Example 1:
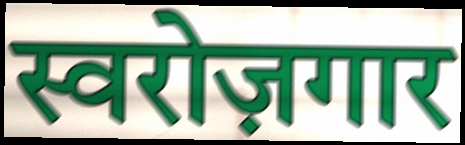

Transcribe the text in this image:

स्वरोज़गार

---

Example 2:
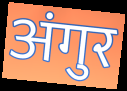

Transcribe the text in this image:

अंगुर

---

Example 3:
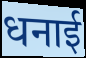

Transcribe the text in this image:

धनाई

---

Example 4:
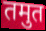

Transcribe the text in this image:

तमुत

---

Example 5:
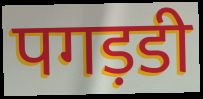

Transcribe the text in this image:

पगड़डी